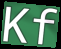
Kf